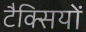
टैक्सियों